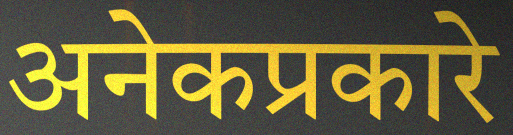
अनेकप्रकारे